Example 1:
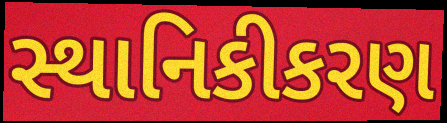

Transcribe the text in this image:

સ્થાનિકીકરણ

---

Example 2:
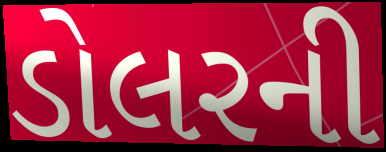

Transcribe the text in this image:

ડોલરની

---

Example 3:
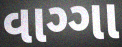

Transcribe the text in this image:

વાગ્ગા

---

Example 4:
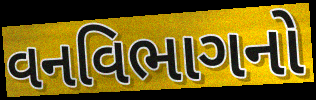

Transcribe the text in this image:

વનવિભાગનો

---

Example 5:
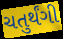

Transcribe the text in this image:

ચતુર્થંગી